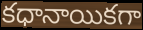
కధానాయికగా